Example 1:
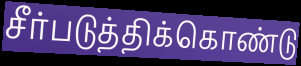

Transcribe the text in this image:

சீர்படுத்திக்கொண்டு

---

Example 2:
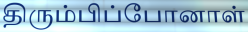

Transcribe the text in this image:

திரும்பிப்போனாள்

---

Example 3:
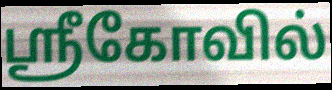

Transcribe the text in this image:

ஸ்ரீகோவில்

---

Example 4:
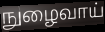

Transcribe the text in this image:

நுழைவாய்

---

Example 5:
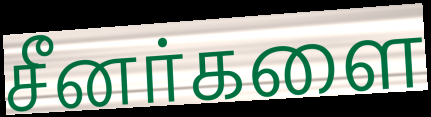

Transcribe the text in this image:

சீனர்களை